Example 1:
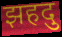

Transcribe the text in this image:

झहदु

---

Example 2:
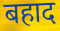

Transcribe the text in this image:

बहाद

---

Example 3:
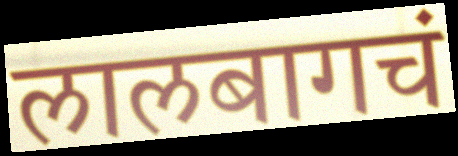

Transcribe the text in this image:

लालबागचं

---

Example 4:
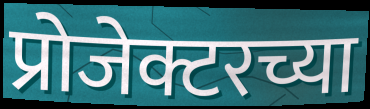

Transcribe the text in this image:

प्रोजेक्टरच्या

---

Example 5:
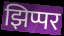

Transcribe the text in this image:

झिप्पर